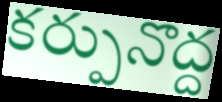
కర్పునొద్ద